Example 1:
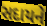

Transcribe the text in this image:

સદાયને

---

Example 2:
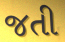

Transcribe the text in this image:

જતી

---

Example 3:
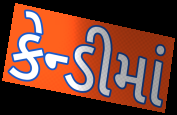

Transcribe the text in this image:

કેન્ડીમાં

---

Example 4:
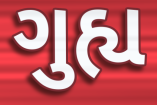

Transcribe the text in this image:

ગુહ્ય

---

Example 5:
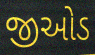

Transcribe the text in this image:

જીઓડ